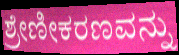
ಶ್ರೇಣೀಕರಣವನ್ನು